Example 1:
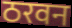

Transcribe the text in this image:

ठरवन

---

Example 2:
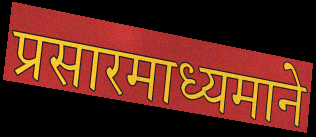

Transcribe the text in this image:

प्रसारमाध्यमाने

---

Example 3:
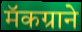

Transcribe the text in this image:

मॅकग्राने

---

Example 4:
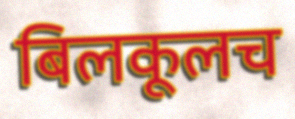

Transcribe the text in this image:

बिलकूलच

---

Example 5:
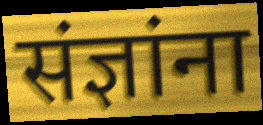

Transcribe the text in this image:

संज्ञांना